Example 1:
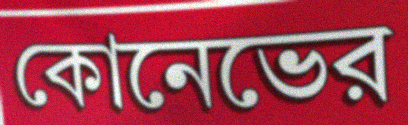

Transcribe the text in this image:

কোনেভের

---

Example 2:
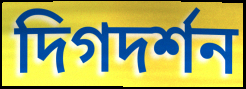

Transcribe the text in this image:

দিগদর্শন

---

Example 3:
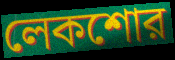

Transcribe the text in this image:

লেকশোর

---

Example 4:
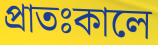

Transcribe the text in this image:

প্রাতঃকালে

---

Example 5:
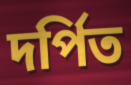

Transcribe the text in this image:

দর্পিত